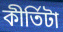
কীর্তিটা